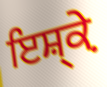
ਇਸ਼੍ਕ਼ੇ